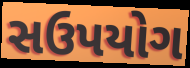
સઉપયોગ